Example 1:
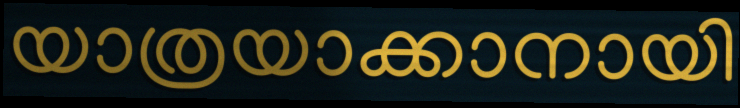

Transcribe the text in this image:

യാത്രയാക്കാനായി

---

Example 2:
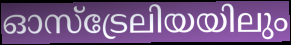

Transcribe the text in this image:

ഓസ്ട്രേലിയയിലും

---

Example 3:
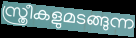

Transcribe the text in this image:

സ്ത്രീകളുമടങ്ങുന്ന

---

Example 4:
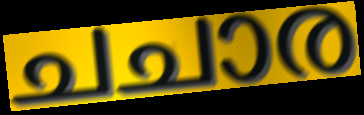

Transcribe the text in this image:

ചചാര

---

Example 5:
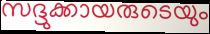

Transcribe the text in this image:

സദ്ദുക്കായരുടെയും